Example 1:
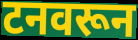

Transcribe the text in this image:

टनवरून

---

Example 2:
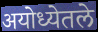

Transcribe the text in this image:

अयोध्येतले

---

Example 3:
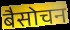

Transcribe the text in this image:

बैसोचन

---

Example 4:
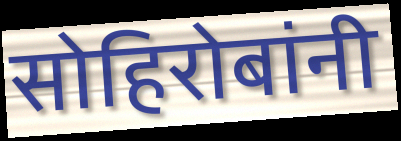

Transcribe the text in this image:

सोहिरोबांनी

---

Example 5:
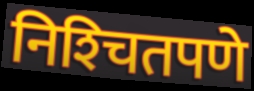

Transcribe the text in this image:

निश्‍चितपणे